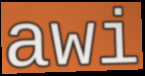
awi